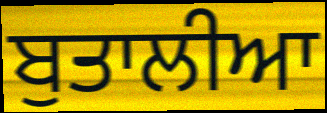
ਬੁਤਾਲੀਆ